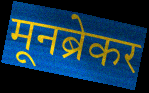
मूनब्रेकर